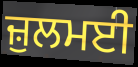
ਜ਼ੁਲਮਈ